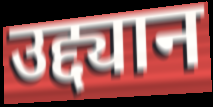
उद्द्यान